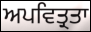
ਅਪਵਿਤ੍ਰਤਾ